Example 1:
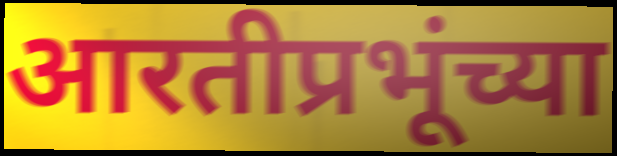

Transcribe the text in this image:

आरतीप्रभूंच्या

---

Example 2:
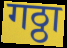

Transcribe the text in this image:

गठ्ठा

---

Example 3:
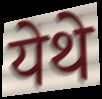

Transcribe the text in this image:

येथे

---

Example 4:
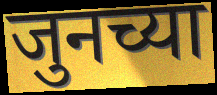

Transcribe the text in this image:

जुनच्या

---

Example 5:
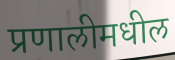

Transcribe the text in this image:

प्रणालीमधील